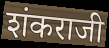
शंकराजी